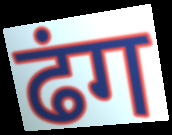
ढंग